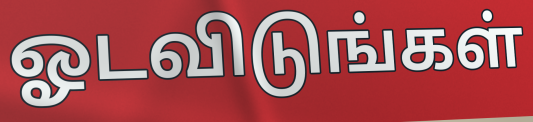
ஓடவிடுங்கள்